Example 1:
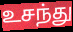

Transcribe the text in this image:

உசந்து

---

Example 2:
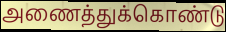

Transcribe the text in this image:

அணைத்துக்கொண்டு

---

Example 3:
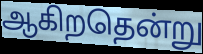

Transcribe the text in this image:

ஆகிறதென்று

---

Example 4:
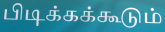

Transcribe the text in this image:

பிடிக்கக்கூடும்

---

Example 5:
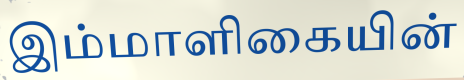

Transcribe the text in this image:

இம்மாளிகையின்